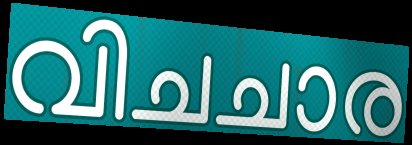
വിചചാര